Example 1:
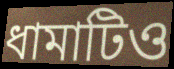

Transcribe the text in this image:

ধামাটিও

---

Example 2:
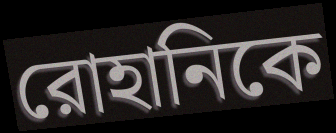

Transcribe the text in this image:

রোহানিকে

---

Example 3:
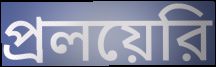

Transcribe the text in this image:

প্রলয়েরি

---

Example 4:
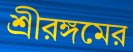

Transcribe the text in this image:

শ্রীরঙ্গমের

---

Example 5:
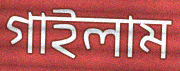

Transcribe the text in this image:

গাইলাম